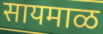
सायमाळ